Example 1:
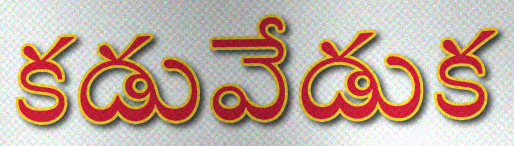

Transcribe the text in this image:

కడువేడుక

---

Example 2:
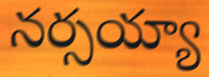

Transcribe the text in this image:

నర్సయ్యా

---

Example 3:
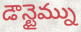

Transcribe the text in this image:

డౌన్టైమ్ను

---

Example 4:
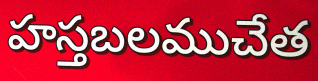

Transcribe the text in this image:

హస్తబలముచేత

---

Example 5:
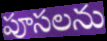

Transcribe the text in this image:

పూసలను